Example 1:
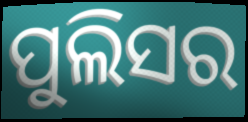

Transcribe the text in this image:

ପୁଲିସର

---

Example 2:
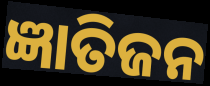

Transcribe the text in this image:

ଜ୍ଞାତିଜନ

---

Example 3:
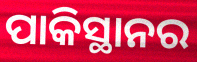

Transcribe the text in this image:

ପାକିସ୍ଥାନର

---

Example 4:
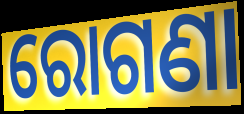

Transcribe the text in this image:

ରୋଗଣା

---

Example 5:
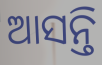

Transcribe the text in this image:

ଆସନ୍ତି